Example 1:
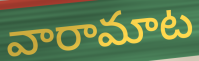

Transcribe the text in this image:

వారామాట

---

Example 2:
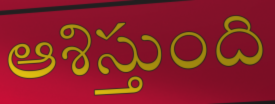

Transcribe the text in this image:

ఆశిస్తుంది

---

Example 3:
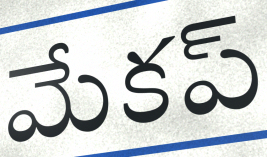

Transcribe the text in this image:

మేకప్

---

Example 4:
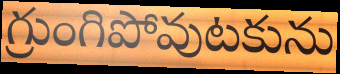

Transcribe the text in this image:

గ్రుంగిపోవుటకును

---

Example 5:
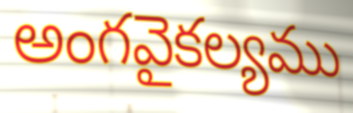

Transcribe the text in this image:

అంగవైకల్యము